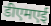
डीएमएई